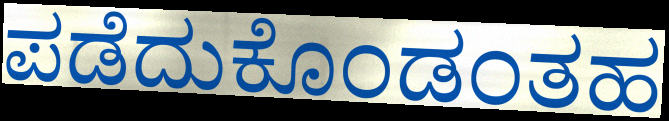
ಪಡೆದುಕೊಂಡಂತಹ